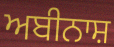
ਅਬੀਨਾਸ਼